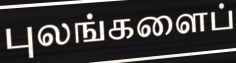
புலங்களைப்